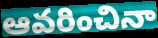
ఆవరించినా